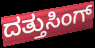
ದತ್ತುಸಿಂಗ್